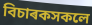
বিচাৰকসকলে